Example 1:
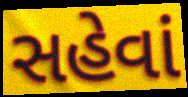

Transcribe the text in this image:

સહેવાં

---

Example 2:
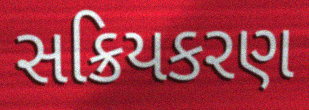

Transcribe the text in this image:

સક્રિયકરણ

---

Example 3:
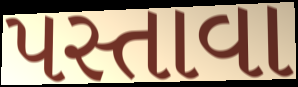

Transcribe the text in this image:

પસ્તાવા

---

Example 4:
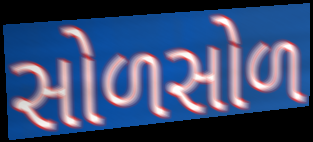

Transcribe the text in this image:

સોળસોળ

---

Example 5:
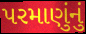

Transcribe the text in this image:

પરમાણુંનું